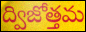
ద్విజోత్తమ